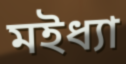
মইধ্যা